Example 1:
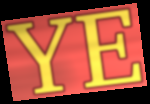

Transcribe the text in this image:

YE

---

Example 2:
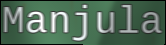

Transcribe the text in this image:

Manjula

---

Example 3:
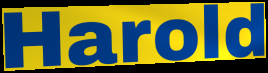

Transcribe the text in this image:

Harold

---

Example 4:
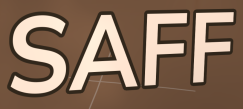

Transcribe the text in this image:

SAFF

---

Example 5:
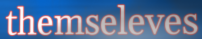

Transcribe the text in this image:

themseleves